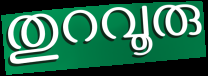
തുറവൂരു